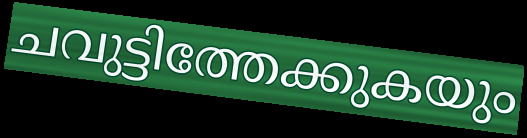
ചവുട്ടിത്തേക്കുകയും